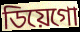
ডিয়েগো